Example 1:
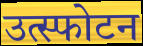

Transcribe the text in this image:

उत्स्फोटन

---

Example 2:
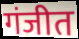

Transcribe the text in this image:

गंजीत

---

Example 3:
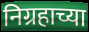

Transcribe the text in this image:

निग्रहाच्या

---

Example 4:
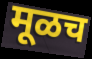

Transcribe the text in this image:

मूळच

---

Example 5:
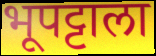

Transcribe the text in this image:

भूपट्टाला